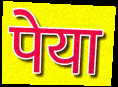
पेया